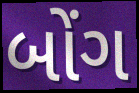
બોંગ